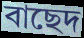
বাছেদ